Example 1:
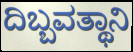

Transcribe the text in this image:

ದಿಬ್ಬವತ್ಥಾನಿ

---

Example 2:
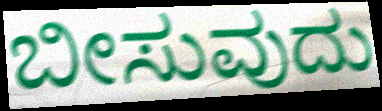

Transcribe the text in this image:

ಬೀಸುವುದು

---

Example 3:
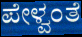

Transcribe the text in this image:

ಪೇಳ್ವಂತೆ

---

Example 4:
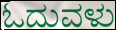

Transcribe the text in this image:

ಓದುವಳು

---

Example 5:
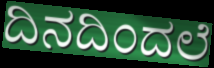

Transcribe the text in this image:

ದಿನದಿಂದಲೆ